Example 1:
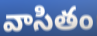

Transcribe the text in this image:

వాసితం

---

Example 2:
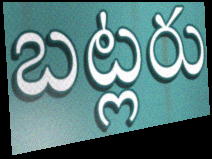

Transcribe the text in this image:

బట్లరు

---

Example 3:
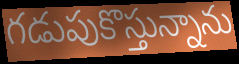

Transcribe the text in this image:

గడుపుకొస్తున్నాను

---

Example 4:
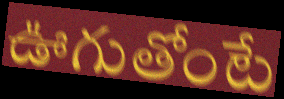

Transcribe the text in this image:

ఊగుతోంటే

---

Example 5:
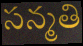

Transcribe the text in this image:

సన్మతి